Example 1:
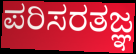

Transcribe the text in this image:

ಪರಿಸರತಜ್ಞ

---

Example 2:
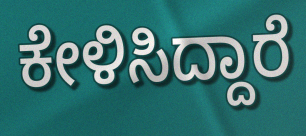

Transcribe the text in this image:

ಕೇಳಿಸಿದ್ದಾರೆ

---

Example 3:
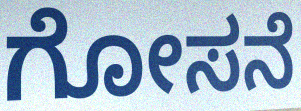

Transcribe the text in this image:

ಗೋಸನೆ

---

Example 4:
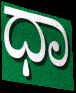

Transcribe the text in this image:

ಧಾ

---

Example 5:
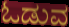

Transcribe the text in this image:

ಓಡುವ